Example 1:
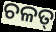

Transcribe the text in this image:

ଚଳତ୍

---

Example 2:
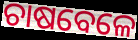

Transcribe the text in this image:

ଚାଷବେଳେ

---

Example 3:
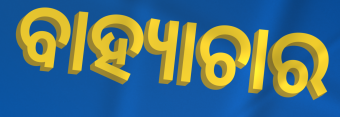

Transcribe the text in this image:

ବାହ୍ୟାଚାର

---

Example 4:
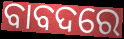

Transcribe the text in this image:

ବାବଦରେ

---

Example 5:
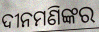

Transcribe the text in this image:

ଦୀନମଣିଙ୍କର